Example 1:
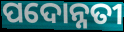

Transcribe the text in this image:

ପଦୋନ୍ନତୀ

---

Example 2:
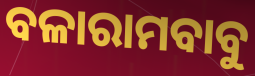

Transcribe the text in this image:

ବଳାରାମବାବୁ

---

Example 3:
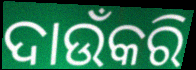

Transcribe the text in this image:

ଦାଉଁକରି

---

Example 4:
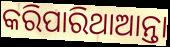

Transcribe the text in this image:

କରିପାରିଥାଆନ୍ତା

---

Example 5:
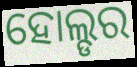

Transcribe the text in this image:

ହୋଲ୍ଡର